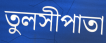
তুলসীপাতা